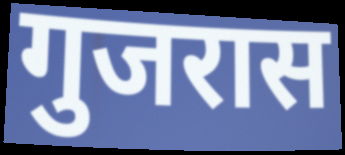
गुजरास